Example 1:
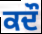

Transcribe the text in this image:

ਕਦੌ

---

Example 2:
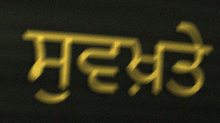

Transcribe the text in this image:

ਸੁਵਖ਼ਤੇ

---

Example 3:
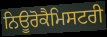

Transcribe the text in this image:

ਨਿਊਰੋਕੈਮਿਸਟਰੀ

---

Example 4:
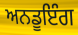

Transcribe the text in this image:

ਅਨਡੂਇੰਗ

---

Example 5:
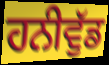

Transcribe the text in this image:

ਹਨੀਵੁੱਡ